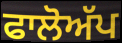
ਫਾਲੋਅੱਪ